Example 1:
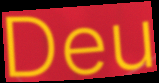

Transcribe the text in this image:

Deu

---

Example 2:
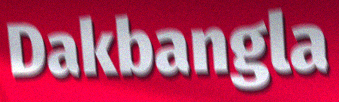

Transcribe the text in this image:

Dakbangla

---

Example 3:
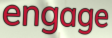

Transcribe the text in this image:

engage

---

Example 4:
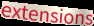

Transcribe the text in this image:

extensions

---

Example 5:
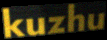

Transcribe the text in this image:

kuzhu